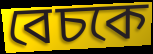
বেচকে